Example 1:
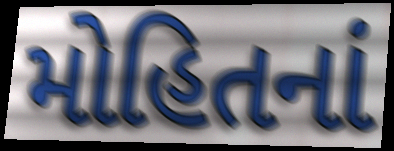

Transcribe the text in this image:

મોહિતનાં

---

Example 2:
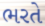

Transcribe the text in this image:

ભરતે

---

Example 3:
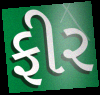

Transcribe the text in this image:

ફીર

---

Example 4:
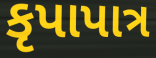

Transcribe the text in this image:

કૃપાપાત્ર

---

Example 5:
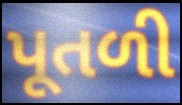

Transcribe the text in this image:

પૂતળી